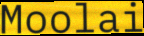
Moolai